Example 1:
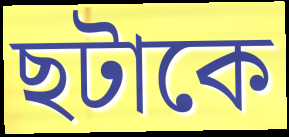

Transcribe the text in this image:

ছটাকে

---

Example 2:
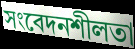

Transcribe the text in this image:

সংবেদনশীলতা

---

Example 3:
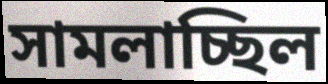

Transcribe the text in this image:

সামলাচ্ছিল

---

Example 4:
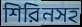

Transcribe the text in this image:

শিরিনসহ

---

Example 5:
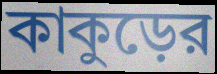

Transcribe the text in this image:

কাকুড়ের